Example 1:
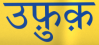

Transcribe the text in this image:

उफ़ुक़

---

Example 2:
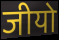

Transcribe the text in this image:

जीयो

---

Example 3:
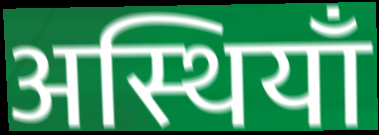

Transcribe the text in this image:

अस्थियाँ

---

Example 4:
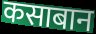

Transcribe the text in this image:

कसाबान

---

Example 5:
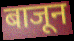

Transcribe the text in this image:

बाजून